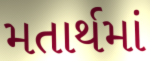
મતાર્થમાં